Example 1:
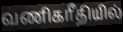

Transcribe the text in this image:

வணிகரீதியில்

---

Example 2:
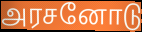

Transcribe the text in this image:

அரசனோடு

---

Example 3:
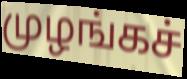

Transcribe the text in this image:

முழங்கச்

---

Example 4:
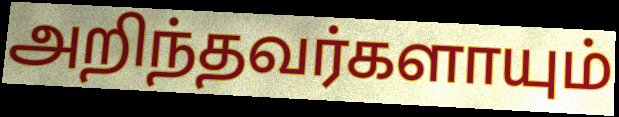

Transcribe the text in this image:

அறிந்தவர்களாயும்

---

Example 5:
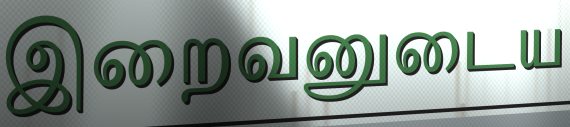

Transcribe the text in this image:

இறைவனுடைய